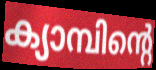
ക്യാമ്പിന്റെ